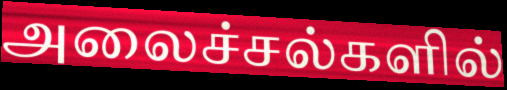
அலைச்சல்களில்